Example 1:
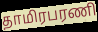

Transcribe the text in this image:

தாமிரபரணி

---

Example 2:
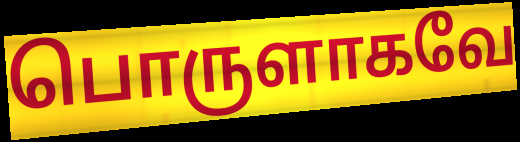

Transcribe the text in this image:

பொருளாகவே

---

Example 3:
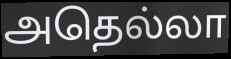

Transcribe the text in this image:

அதெல்லா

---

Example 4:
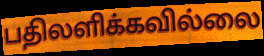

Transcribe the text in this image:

பதிலளிக்கவில்லை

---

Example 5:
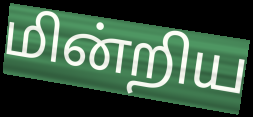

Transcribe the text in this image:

மின்றிய